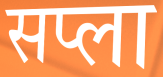
सप्ला